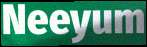
Neeyum